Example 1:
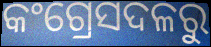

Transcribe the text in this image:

କଂଗ୍ରେସଦଳରୁ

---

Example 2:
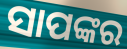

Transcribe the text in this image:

ସାପଙ୍କର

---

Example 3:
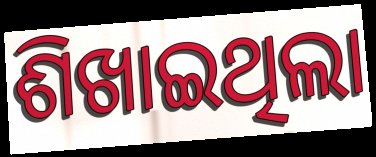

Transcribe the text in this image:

ଶିଖାଇଥିଲା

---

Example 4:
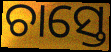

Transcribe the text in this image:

ଚାସ୍ତେ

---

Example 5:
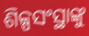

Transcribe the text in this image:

ଶିଳ୍ପସଂସ୍ଥାଙ୍କୁ